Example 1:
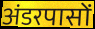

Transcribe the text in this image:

अंडरपासों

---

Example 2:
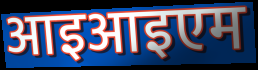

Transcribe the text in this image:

आइआइएम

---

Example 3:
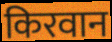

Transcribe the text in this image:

किरवान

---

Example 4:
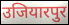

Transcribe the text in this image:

उजियारपुर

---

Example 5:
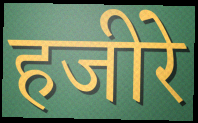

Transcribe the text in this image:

हजीरे